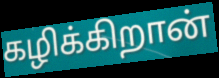
கழிக்கிறான்